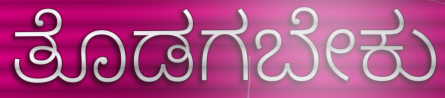
ತೊಡಗಬೇಕು